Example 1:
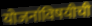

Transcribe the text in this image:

योजनांविषयीची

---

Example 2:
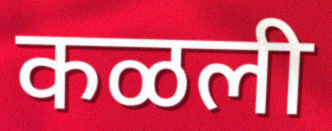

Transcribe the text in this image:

कळली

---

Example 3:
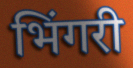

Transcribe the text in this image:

भिंगरी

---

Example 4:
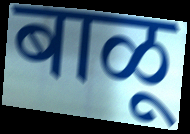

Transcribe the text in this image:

बाळू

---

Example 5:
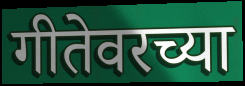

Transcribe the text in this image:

गीतेवरच्या